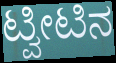
ಟ್ವೀಟಿನ